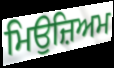
ਮਿਉਜ਼ਿਅਮ